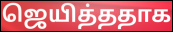
ஜெயித்ததாக